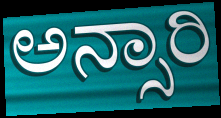
ಅನ್ಸಾರಿ